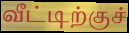
வீட்டிற்குச்